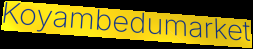
Koyambedumarket